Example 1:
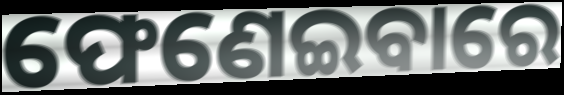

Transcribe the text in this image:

ଫେଣେଇବାରେ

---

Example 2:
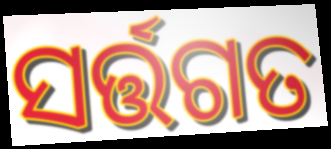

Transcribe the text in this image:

ସର୍ତ୍ତଗତ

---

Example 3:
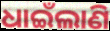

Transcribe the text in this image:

ଧାଇଁଲାଣି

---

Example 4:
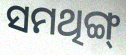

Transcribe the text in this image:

ସମଥିଙ୍ଗ୍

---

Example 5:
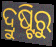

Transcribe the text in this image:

ଦ୍ରୁଷ୍ଟିରୁ